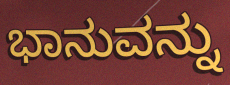
ಭಾನುವನ್ನು